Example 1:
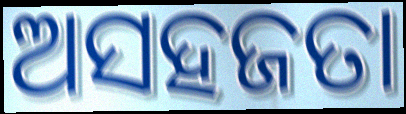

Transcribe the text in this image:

ଅସହଜତା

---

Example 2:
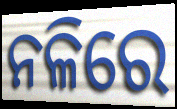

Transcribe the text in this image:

ନଳିରେ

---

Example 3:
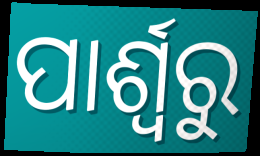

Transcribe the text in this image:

ପାର୍ଶ୍ଵରୁ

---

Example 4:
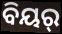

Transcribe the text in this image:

ବିୟର୍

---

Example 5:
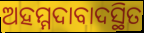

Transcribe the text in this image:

ଅହମ୍ମଦାବାଦସ୍ଥିତ